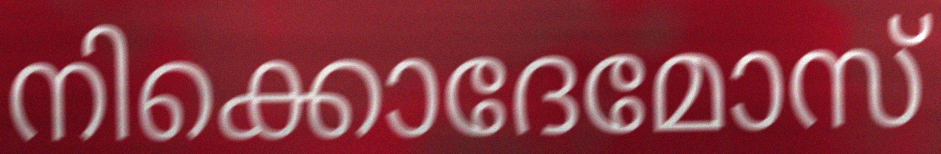
നിക്കൊദേമോസ്